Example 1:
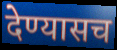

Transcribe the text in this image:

देण्यासच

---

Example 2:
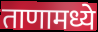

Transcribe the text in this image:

ताणामध्ये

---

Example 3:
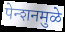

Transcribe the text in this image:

पेन्शनमुळे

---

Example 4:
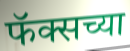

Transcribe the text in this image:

फॅक्सच्या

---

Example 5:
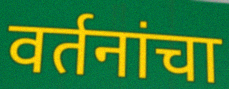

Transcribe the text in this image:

वर्तनांचा